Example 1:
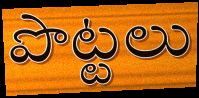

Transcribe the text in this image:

పొట్టలు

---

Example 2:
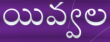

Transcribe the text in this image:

యివ్వల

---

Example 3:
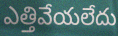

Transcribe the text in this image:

ఎత్తివేయలేదు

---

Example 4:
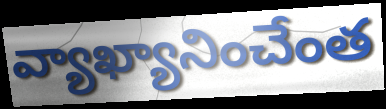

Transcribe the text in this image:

వ్యాఖ్యానించేంత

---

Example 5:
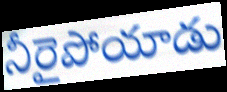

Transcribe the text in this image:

నీరైపోయాడు